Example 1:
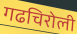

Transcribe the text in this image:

गढचिरोली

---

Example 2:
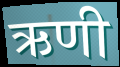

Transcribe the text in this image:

ऋणी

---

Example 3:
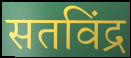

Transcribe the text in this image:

सतविंद्र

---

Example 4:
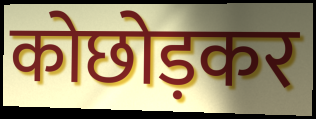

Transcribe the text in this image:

कोछोड़कर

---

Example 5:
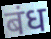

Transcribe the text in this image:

बंध